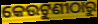
କେଉଟୁଣୀଠାରୁ